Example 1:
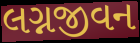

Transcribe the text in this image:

લગ્નજીવન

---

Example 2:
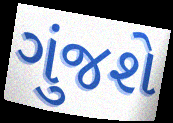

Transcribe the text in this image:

ગુંજશે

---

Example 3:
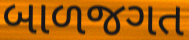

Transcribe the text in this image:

બાળજગત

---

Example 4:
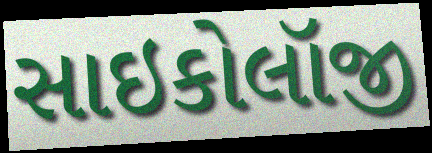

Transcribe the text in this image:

સાઇકોલૉજી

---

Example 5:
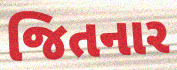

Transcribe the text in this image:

જિતનાર